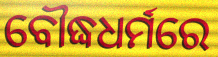
ବୌଦ୍ଧଧର୍ମରେ